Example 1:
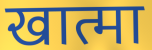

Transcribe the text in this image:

खात्मा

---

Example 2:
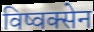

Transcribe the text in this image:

विष्वक्सेन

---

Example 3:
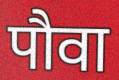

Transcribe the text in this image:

पौवा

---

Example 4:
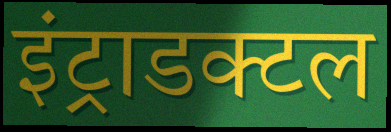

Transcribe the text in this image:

इंट्राडक्टल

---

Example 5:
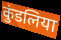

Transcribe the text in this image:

कुंडलिया